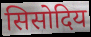
सिसोदिय